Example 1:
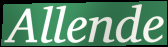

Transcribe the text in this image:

Allende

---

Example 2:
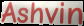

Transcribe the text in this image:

Ashvin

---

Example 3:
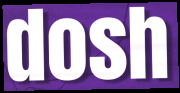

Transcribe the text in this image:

dosh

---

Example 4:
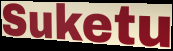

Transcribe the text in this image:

Suketu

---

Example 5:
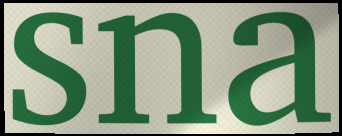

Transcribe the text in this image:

sna